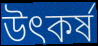
উৎকর্ষ